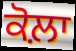
ਕੋਲ਼ਾ